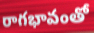
రాగభావంతో